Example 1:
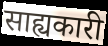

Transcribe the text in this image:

साह्यकारी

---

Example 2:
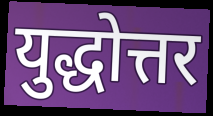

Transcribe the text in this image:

युद्धोत्तर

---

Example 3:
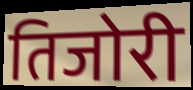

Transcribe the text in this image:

तिजोरी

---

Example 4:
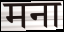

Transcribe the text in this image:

मना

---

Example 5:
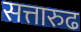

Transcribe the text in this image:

सत्तारुढ